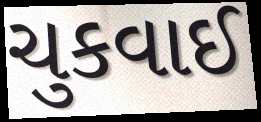
ચુકવાઈ